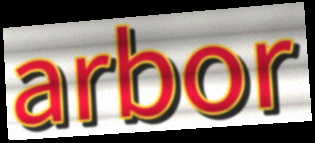
arbor